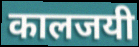
कालजयी